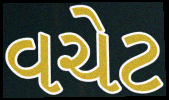
વચેટ